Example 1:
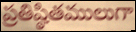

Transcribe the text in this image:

ప్రతిష్ఠితములుగా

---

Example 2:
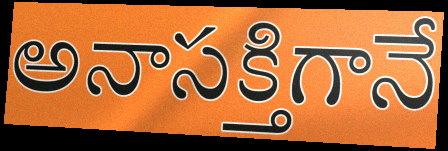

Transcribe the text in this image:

అనాసక్తిగానే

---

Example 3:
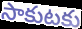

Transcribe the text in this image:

సాకుటకు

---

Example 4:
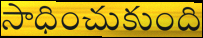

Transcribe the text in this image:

సాధించుకుంది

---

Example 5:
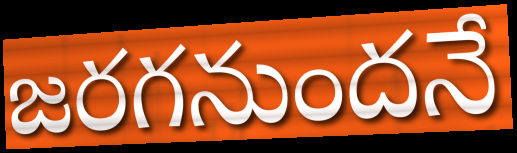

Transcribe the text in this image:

జరగనుందనే